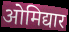
ओमिद्यार